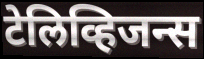
टेलिव्हिजन्स